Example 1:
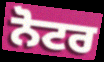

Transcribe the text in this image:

ਨੋਟਰ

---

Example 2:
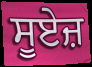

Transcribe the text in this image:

ਸੂਏਜ਼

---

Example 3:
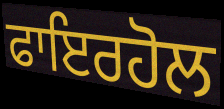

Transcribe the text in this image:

ਫਾਇਰਹੋਲ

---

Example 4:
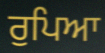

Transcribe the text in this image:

ਰੁਪਿਆ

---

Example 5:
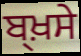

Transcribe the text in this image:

ਬ੍ਖ਼ਸੇ